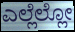
ಎಲ್ಲೆಲ್ಲೋ